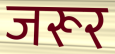
जरूर